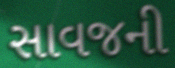
સાવજની